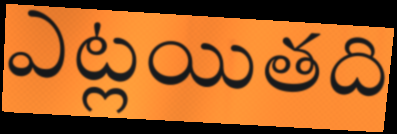
ఎట్లయితది